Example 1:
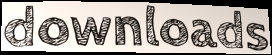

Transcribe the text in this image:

downloads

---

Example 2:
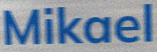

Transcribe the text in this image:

Mikael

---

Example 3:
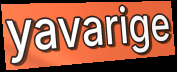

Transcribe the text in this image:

yavarige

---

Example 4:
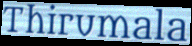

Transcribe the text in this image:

Thirumala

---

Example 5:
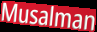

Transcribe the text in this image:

Musalman